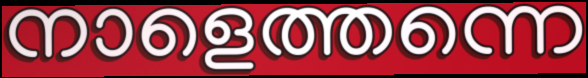
നാളെത്തന്നെ